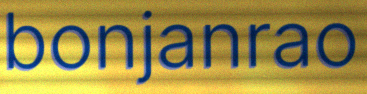
bonjanrao